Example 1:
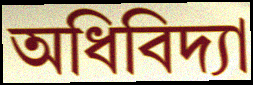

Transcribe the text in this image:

অধিবিদ্যা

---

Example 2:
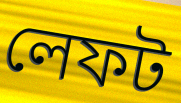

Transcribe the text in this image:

লেফট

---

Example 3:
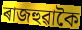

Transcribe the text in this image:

ৰাজহুৱাকৈ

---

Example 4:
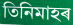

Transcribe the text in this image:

তিনিমাহৰ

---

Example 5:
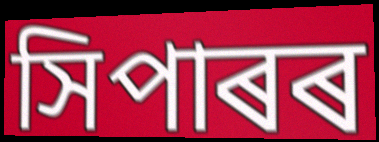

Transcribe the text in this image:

সিপাৰৰ